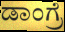
ಡಾಂಗ್ರೆ